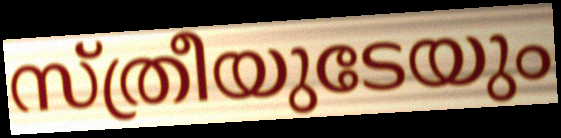
സ്ത്രീയുടേയും